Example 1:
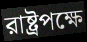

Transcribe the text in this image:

রাষ্ট্রপক্ষে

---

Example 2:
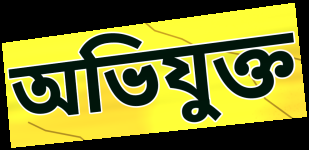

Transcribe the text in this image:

অভিযুক্ত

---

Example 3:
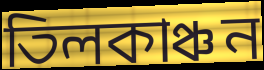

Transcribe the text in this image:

তিলকাঞ্চন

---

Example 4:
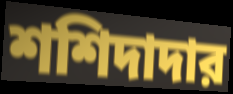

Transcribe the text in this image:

শশিদাদার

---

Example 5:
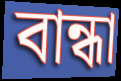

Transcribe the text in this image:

বান্ধা